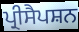
ਪ੍ਰੀਸੈਪਸ਼ਨ